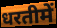
धरतीमें